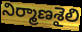
నిర్మాణశైలి